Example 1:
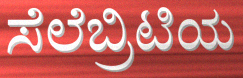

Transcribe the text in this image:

ಸೆಲೆಬ್ರಿಟಿಯ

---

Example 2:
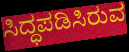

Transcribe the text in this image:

ಸಿದ್ಧಪಡಿಸಿರುವ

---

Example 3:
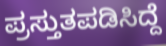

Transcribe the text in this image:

ಪ್ರಸ್ತುತಪಡಿಸಿದ್ದೆ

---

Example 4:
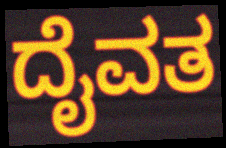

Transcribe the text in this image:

ದೈವತ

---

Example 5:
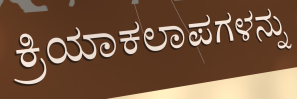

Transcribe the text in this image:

ಕ್ರಿಯಾಕಲಾಪಗಳನ್ನು